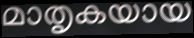
മാതൃകയായ